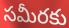
సమీరకు